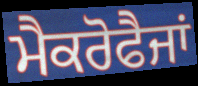
ਮੈਕਰੋਫੈਜਾਂ